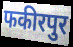
फकीरपुर